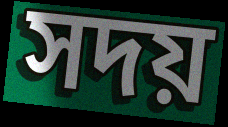
সদয়